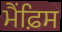
ਮੈਂਫ਼ਿਸ